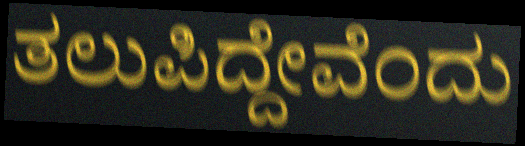
ತಲುಪಿದ್ದೇವೆಂದು